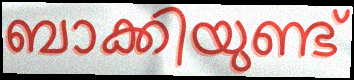
ബാക്കിയുണ്ട്